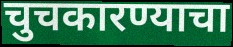
चुचकारण्याचा